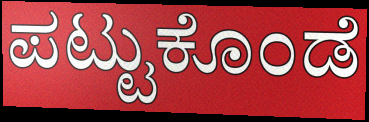
ಪಟ್ಟುಕೊಂಡೆ